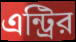
এন্ট্রির